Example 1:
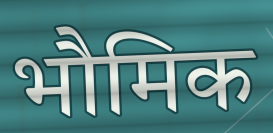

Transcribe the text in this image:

भौमिक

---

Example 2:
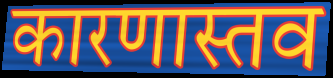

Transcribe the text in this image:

कारणास्तव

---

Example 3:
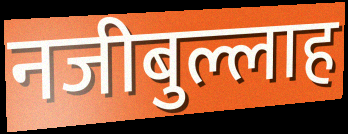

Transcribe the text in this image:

नजीबुल्लाह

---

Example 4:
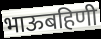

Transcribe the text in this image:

भाऊबहिणी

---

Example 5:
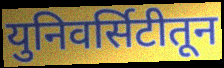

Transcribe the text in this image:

युनिवर्सिटीतून